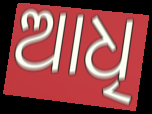
ଆଧି